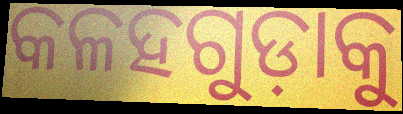
କଳହଗୁଡ଼ାକୁ